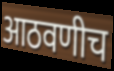
आठवणीच